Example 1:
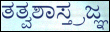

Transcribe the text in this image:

ತತ್ವಶಾಸ್ತ್ರಜ್ಞ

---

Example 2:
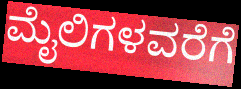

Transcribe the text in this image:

ಮೈಲಿಗಳವರೆಗೆ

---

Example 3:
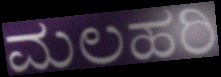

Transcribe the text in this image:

ಮಲಹರಿ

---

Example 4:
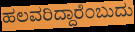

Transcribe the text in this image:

ಹಲವರಿದ್ದಾರೆಂಬುದು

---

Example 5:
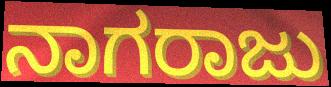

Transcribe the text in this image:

ನಾಗರಾಜು